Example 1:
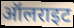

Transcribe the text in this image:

ऑलराइट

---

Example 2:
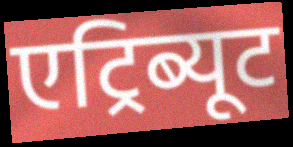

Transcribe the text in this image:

एट्रिब्यूट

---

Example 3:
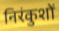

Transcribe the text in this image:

निरंकुशों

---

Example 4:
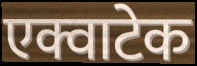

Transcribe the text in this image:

एक्वाटेक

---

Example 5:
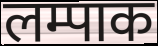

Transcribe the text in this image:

लम्पाक